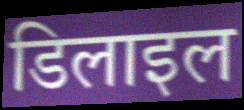
डिलाइल